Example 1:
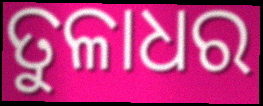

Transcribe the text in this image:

ତୁଳାଧର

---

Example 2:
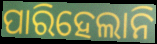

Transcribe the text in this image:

ପାରିହେଲାନି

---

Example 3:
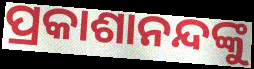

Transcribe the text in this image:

ପ୍ରକାଶାନନ୍ଦଙ୍କୁ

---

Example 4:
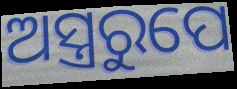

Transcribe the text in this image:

ଅସ୍ତ୍ରରୁପେ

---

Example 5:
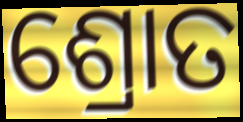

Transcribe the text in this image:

ଶ୍ରୋତ